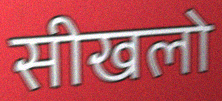
सीखलो